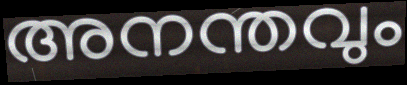
അനന്തവും